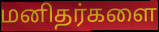
மனிதர்களை